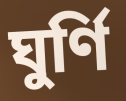
ঘুর্ণি